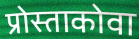
प्रोस्ताकोवा